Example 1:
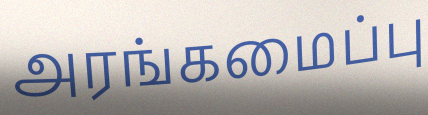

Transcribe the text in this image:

அரங்கமைப்பு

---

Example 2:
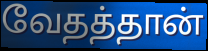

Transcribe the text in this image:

வேதத்தான்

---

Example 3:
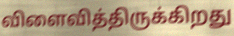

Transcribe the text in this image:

விளைவித்திருக்கிறது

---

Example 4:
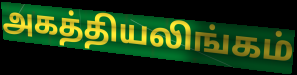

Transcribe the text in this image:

அகத்தியலிங்கம்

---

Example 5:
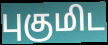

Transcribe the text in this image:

புகுமிட